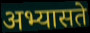
अभ्यासते